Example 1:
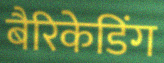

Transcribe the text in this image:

बैरिकेडिंग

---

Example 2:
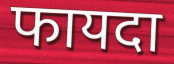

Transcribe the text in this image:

फायदा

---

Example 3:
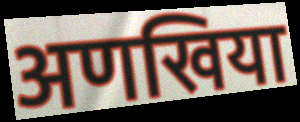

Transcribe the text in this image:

अणखिया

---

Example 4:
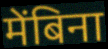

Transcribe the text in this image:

मेंबिना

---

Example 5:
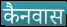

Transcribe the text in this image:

कैनवास